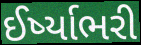
ઈર્ષ્યાભરી